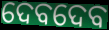
ଦେବଦେବ